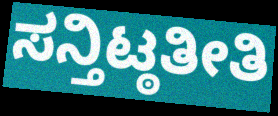
ಸನ್ತಿಟ್ಠತೀತಿ